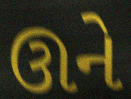
ઊને